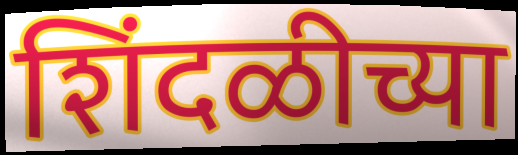
शिंदळीच्या